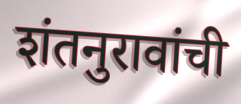
शंतनुरावांची